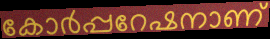
കോർപ്പറേഷനാണ്